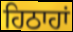
ਹਿਠਾਹਾਂ